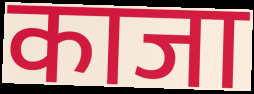
काजा